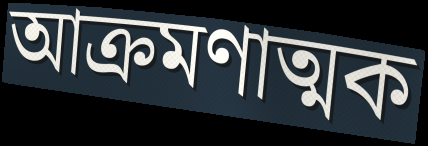
আক্রমণাত্মক